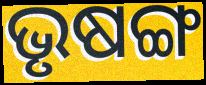
ଭୃଷଙ୍ଗ